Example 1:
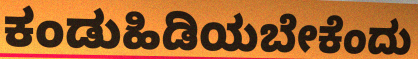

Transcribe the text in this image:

ಕಂಡುಹಿಡಿಯಬೇಕೆಂದು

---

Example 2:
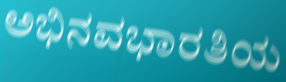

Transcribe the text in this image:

ಅಭಿನವಭಾರತಿಯ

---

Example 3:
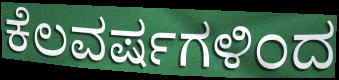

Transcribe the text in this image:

ಕೆಲವರ್ಷಗಳಿಂದ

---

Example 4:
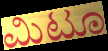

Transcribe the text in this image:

ಮಿಟೂ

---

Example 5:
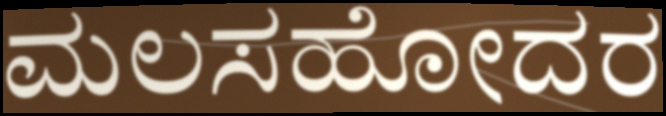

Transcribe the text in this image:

ಮಲಸಹೋದರ